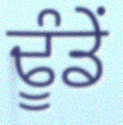
ਢੂੰਡੇਂ